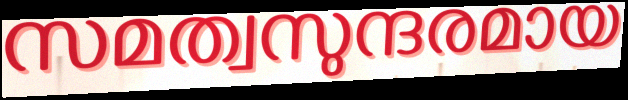
സമത്വസുന്ദരമായ